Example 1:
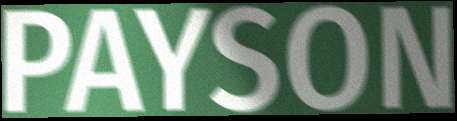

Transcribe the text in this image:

PAYSON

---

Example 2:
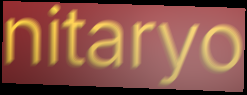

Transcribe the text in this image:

nitaryo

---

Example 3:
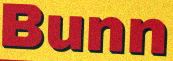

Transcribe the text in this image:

Bunn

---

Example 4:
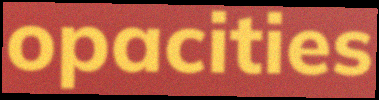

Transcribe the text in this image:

opacities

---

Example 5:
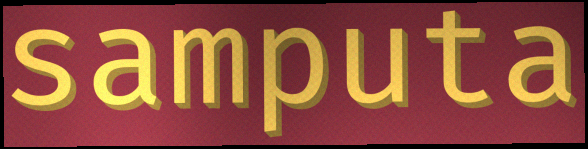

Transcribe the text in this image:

samputa